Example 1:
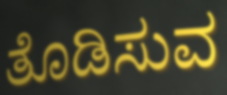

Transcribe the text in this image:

ತೊಡಿಸುವ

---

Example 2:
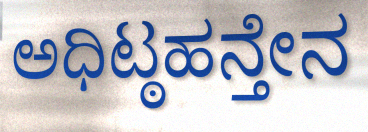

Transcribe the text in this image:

ಅಧಿಟ್ಠಹನ್ತೇನ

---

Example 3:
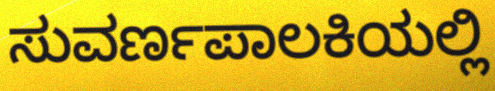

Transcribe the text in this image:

ಸುವರ್ಣಪಾಲಕಿಯಲ್ಲಿ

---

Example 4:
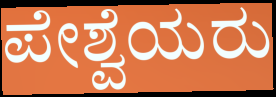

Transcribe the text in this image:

ಪೇಶ್ವೆಯರು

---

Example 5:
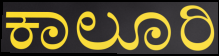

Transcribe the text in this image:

ಕಾಲೂರಿ